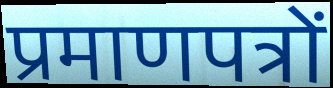
प्रमाणपत्रों